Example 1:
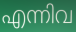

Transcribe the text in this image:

എന്നിവ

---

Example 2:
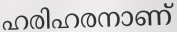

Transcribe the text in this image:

ഹരിഹരനാണ്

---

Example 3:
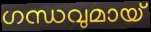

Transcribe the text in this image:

ഗന്ധവുമായ്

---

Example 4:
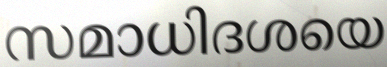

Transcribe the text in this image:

സമാധിദശയെ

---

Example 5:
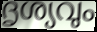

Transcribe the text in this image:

ദൃശ്യവും